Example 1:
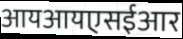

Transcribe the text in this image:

आयआयएसईआर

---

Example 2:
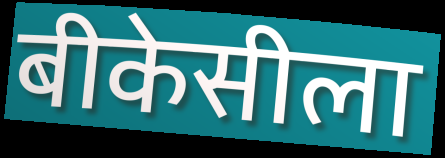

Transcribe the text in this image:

बीकेसीला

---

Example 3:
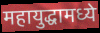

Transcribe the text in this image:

महायुद्धामध्ये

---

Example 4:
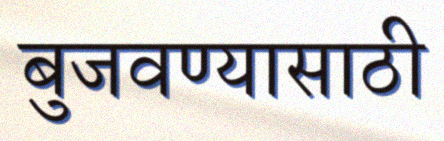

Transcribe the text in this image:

बुजवण्यासाठी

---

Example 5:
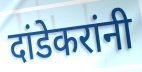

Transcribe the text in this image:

दांडेकरांनी